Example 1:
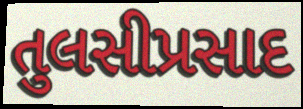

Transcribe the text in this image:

તુલસીપ્રસાદ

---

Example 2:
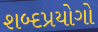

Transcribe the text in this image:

શબ્દપ્રયોગો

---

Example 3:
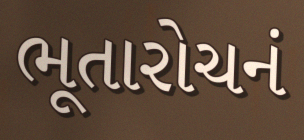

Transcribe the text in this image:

ભૂતારોચનં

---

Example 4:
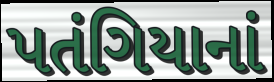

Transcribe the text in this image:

પતંગિયાનાં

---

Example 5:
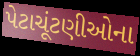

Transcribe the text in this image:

પેટાચૂંટણીઓના